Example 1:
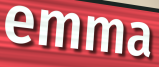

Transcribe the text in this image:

emma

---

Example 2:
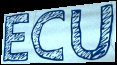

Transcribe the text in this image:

ECU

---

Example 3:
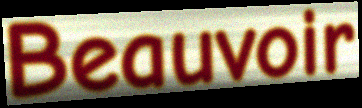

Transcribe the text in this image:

Beauvoir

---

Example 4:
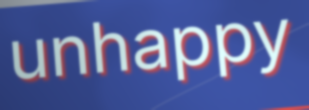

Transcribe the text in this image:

unhappy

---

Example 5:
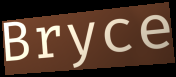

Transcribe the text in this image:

Bryce